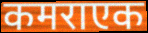
कमराएक